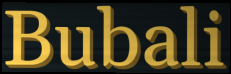
Bubali